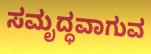
ಸಮೃದ್ಧವಾಗುವ